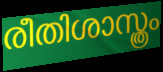
രീതിശാസ്ത്രം